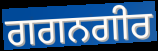
ਗਗਨਗੀਰ